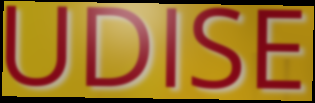
UDISE